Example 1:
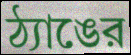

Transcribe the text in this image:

ঠ্যাঙের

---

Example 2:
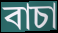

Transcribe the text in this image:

বাচা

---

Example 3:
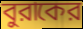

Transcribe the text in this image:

বুরাকের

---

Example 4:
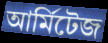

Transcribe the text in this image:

আর্মিটেজ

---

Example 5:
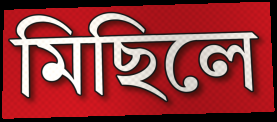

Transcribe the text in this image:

মিছিলে